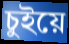
চুইয়ে